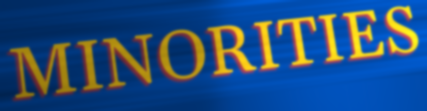
MINORITIES